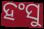
ହଂସୁ